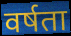
वर्षता